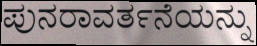
ಪುನರಾವರ್ತನೆಯನ್ನು